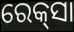
ରେକ୍‍ସା